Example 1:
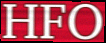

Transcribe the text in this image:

HFO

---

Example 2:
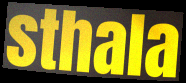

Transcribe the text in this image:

sthala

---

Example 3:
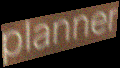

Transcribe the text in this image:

planner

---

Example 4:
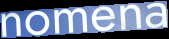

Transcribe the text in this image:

nomena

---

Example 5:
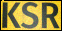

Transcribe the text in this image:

KSR